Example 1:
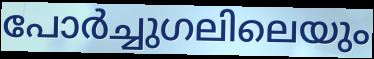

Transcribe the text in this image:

പോർച്ചുഗലിലെയും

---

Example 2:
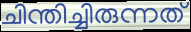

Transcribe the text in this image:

ചിന്തിച്ചിരുന്നത്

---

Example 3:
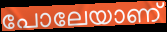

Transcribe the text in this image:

പോലേയാണ്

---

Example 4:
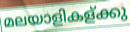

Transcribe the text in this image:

മലയാളികള്ക്കു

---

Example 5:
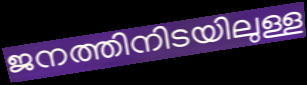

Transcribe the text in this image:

ജനത്തിനിടയിലുള്ള